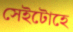
সেইটোহে